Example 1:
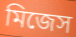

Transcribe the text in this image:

মিজেস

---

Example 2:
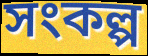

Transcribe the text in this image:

সংকল্প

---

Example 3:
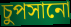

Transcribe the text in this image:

চুপসানো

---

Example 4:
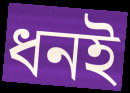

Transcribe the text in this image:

ধনই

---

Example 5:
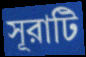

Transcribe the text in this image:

সূরাটি